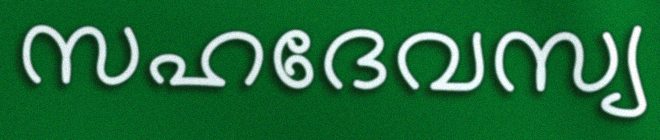
സഹദേവസ്യ